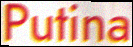
Putina